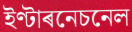
ইণ্টাৰনেচনেল